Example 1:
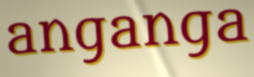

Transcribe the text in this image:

anganga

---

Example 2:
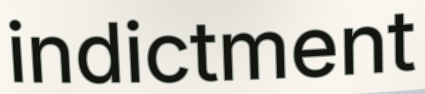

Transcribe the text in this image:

indictment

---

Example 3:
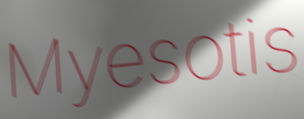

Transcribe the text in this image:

Myesotis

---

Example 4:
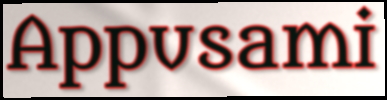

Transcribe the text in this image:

Appusami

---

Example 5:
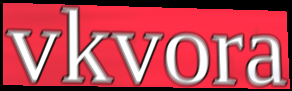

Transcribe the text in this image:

vkvora